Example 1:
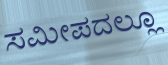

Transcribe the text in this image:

ಸಮೀಪದಲ್ಲೂ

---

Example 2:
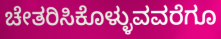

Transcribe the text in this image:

ಚೇತರಿಸಿಕೊಳ್ಳುವವರೆಗೂ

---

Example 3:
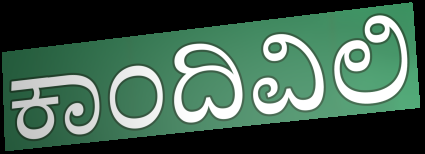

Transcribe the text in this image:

ಕಾಂದಿವಿಲಿ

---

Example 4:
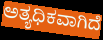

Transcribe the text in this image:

ಅತ್ಯಧಿಕವಾಗಿದೆ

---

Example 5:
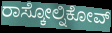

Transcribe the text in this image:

ರಾಸ್ಕೋಲ್ನಿಕೋವ್